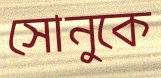
সোনুকে